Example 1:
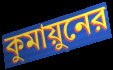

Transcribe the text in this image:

কুমায়ুনের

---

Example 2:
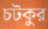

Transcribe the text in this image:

চটকুর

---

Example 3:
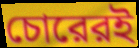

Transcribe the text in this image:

চোরেরই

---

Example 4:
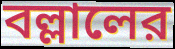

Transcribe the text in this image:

বল্লালের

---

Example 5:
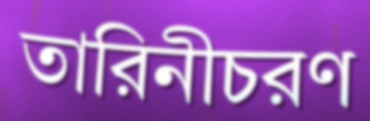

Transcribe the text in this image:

তারিনীচরণ